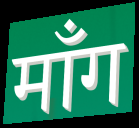
माँग